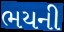
ભયની